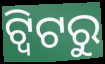
ଟ୍ବିଟରୁ